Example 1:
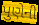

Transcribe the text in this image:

પુણેની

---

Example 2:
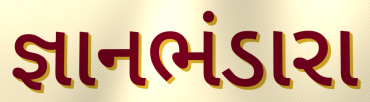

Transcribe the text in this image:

જ્ઞાનભંડારા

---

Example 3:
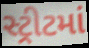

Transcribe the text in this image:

સ્ટ્રીટમાં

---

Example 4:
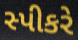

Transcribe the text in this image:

સ્પીકરે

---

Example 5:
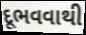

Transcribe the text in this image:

દૂભવવાથી